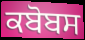
ਕਬੋਬਸ